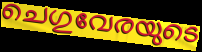
ചെഗുവേരയുടെ